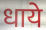
धाये